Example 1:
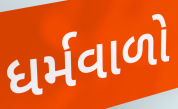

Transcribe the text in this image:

ધર્મવાળો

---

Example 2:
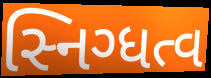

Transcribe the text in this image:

સ્નિગ્ધત્વ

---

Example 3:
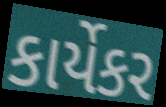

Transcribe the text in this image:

કાર્યેકર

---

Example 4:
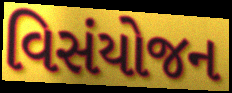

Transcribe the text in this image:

વિસંયોજન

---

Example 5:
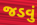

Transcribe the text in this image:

જડવું